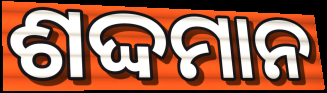
ଶଦ୍ଦମାନ